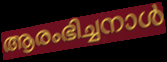
ആരംഭിച്ചനാൾ